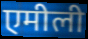
एमीली